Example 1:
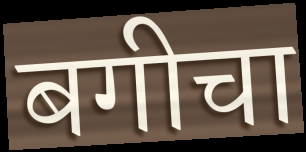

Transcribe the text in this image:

बगीचा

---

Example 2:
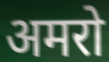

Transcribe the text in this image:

अमरो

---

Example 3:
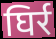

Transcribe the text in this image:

घिर्र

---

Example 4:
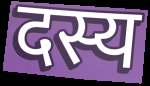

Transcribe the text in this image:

दस्य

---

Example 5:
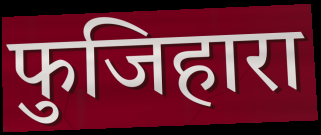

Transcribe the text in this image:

फुजिहारा